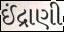
ઈંદ્રાણી